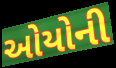
ઓયોની